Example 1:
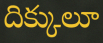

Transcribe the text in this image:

దిక్కులూ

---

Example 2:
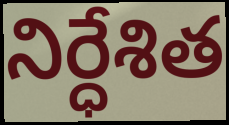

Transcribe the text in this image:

నిర్ధేశిత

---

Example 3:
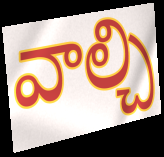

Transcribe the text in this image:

వాల్చి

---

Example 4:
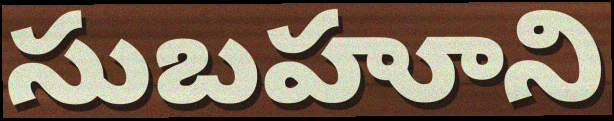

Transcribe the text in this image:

సుబహూని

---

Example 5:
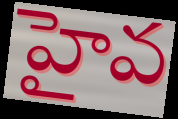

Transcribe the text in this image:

హైవ